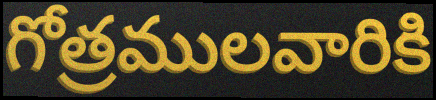
గోత్రములవారికి